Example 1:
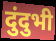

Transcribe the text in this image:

दुंदुभी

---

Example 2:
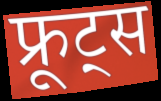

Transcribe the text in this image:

फ्रूट्स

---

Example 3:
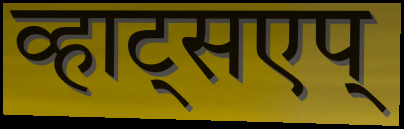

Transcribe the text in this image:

व्हाट्सएप्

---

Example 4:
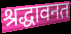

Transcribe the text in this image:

श्रद्धावनत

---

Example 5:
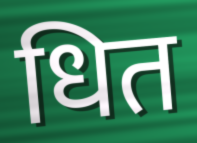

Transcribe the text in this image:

धित